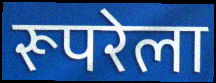
रूपरेला